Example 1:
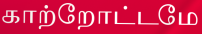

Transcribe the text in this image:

காற்றோட்டமே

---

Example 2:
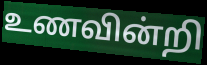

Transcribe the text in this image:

உணவின்றி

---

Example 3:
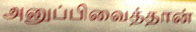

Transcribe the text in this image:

அனுப்பிவைத்தான்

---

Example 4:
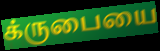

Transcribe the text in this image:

க்ருபையை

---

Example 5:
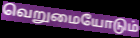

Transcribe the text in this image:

வெறுமையோடும்